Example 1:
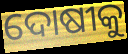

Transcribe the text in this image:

ଦୋଷୀକୁ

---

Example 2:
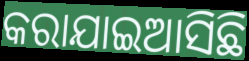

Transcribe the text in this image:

କରାଯାଇଆସିଛି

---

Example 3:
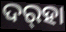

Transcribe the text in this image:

ଦର୍‌ହା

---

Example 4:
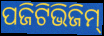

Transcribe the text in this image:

ପଜିଟିଭିଜିମ୍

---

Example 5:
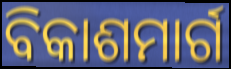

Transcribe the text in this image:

ବିକାଶମାର୍ଗ